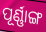
ପୂର୍ଣ୍ଣାଙ୍ଗ